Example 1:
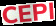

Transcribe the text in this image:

CEPI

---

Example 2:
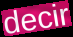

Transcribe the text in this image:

decir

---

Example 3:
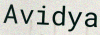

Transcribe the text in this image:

Avidya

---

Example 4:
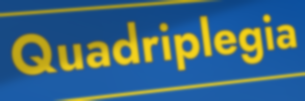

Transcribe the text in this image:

Quadriplegia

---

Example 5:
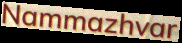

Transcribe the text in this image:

Nammazhvar